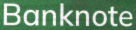
Banknote